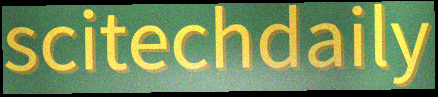
scitechdaily